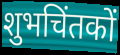
शुभचिंतकों